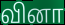
வினா